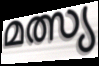
മത്സ്യ